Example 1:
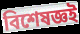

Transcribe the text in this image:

বিশেষজ্ঞই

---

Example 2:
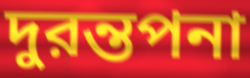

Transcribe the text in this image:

দুরন্তপনা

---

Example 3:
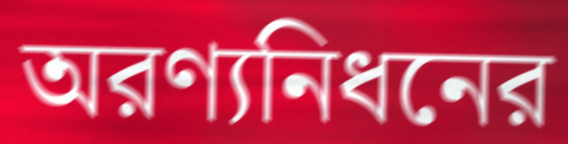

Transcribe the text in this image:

অরণ্যনিধনের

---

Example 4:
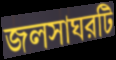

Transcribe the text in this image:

জলসাঘরটি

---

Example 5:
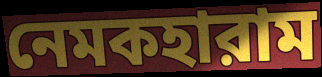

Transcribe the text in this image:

নেমকহারাম